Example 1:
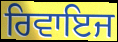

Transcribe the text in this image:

ਰਿਵਾਇਜ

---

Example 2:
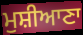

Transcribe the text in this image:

ਮੁਸ਼ੀਆਣਾ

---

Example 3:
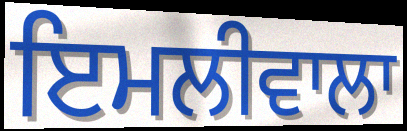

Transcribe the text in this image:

ਇਮਲੀਵਾਲਾ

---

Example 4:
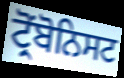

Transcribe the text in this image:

ਟ੍ਰੋਂਬੋਨਿਸਟ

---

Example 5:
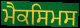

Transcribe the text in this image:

ਮੈਕਸਿਮਸ